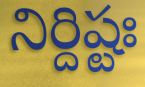
నిర్దిష్టః